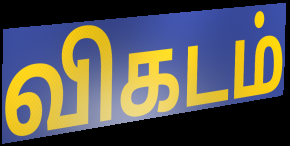
விகடம்